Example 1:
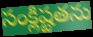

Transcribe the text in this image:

సంక్లిష్టతను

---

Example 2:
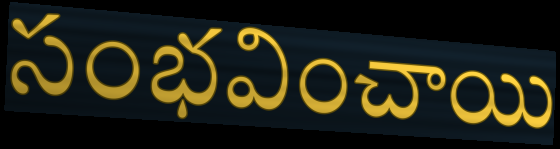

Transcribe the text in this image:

సంభవించాయి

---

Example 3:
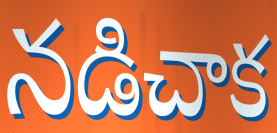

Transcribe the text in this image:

నడిచాక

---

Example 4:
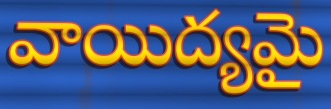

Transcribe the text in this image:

వాయిద్యమై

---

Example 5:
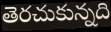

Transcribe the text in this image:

తెరచుకున్నది